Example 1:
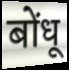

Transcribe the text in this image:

बोंधू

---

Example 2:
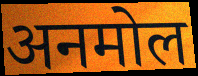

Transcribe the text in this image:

अनमोल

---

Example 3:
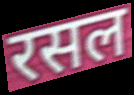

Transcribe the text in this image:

रसल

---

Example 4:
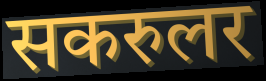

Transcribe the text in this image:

सकरुलर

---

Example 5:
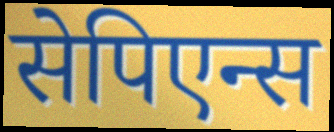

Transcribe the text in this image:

सेपिएन्स